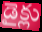
డైక్లు